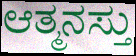
ಆತ್ಮನಸ್ತು